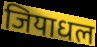
जियाधल